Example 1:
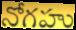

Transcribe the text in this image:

నోగహు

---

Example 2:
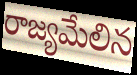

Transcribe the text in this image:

రాజ్యమేలిన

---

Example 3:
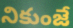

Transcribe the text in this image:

నికుంజే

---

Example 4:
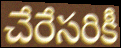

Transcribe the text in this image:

చేరేసరికీ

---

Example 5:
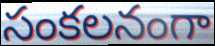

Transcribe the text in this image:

సంకలనంగా